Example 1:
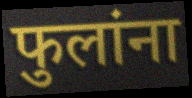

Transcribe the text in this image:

फुलांना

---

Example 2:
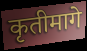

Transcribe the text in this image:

कृतीमागे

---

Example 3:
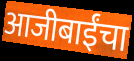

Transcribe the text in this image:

आजीबाईंचा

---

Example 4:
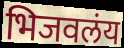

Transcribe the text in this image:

भिजवलंय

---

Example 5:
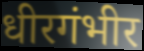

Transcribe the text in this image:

धीरगंभीर